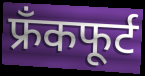
फ्रँकफूर्ट